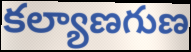
కల్యాణగుణ